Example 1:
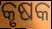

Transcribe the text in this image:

କୃଷକ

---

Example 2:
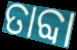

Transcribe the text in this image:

ତାବ୍ଦା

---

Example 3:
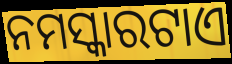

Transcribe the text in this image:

ନମସ୍କାରଟାଏ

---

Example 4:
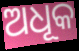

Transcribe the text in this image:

ଅଧୂକ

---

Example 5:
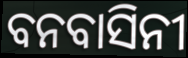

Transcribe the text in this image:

ବନବାସିନୀ